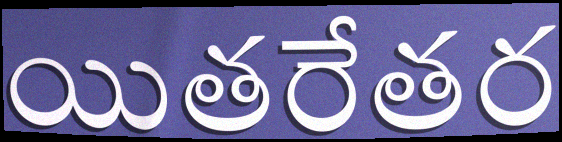
యితరేతర